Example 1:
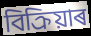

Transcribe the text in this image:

বিক্ৰিয়াৰ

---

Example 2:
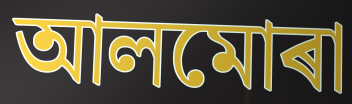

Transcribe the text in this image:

আলমোৰা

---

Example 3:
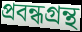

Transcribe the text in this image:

প্ৰবন্ধগ্ৰন্থ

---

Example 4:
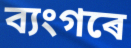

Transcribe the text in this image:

ব্যংগৰে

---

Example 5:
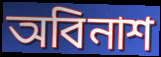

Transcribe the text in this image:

অবিনাশ